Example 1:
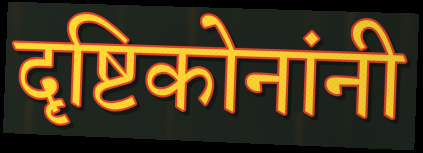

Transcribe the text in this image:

दृष्टिकोनांनी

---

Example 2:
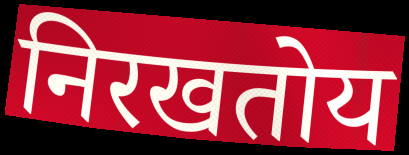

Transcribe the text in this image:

निरखतोय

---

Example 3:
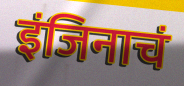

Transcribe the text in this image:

इंजिनाचं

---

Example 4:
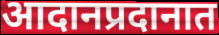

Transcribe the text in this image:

आदानप्रदानात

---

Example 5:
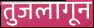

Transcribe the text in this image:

तुजलागून